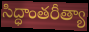
సిద్ధాంతరీత్యా